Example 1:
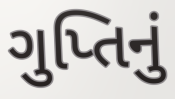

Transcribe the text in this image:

ગુપ્તિનું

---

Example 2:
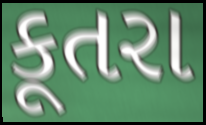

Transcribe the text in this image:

કૂતરા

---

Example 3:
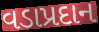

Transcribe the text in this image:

વડાપ્રદાન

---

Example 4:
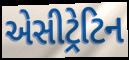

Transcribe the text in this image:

એસીટ્રેટિન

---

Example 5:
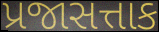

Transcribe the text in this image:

પ્રજાસત્તાક